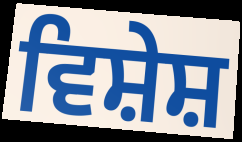
ਵਿਸ਼ੇਸ਼